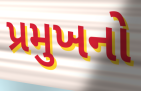
પ્રમુખનો